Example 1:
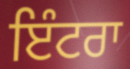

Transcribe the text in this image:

ਇੰਟਰਾ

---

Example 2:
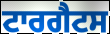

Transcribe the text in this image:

ਟਾਰਗੈਟਸ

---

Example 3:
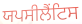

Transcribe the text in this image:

ਯਪਸੀਲੈਂਟਿਸ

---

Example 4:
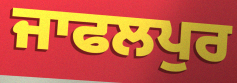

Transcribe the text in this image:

ਜਾਫਲਪੁਰ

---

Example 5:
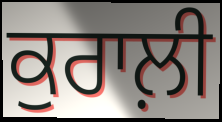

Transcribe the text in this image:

ਕੁਰਾਲ਼ੀ